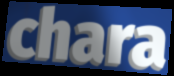
chara